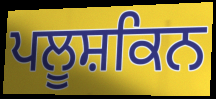
ਪਲੂਸ਼ਕਿਨ